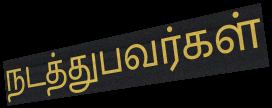
நடத்துபவர்கள்